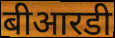
बीआरडी